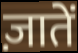
ज़ातें